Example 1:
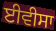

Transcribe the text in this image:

ਈਵੀਸਾ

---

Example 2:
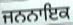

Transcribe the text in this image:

ਜਨਨਾਇਕ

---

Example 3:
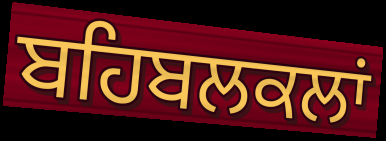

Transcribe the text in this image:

ਬਹਿਬਲਕਲਾਂ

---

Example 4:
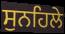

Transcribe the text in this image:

ਸੁਨਹਿਲੇ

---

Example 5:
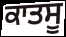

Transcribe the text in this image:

ਕਾਤਸੂ